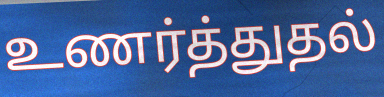
உணர்த்துதல்